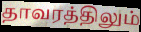
தாவரத்திலும்